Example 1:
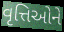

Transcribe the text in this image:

વૃત્તિઓને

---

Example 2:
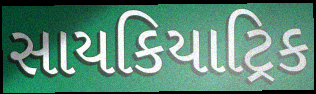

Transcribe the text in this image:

સાયકિયાટ્રિક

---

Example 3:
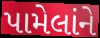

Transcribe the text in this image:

પામેલાંને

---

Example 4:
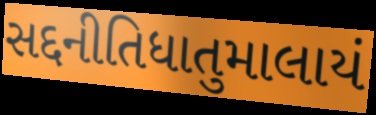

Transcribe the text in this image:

સદ્દનીતિધાતુમાલાયં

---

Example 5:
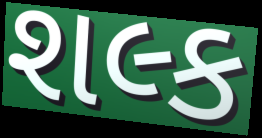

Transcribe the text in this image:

શલ્ક